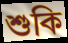
শুকি